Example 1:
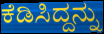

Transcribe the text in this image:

ಕೆಡಿಸಿದ್ದನ್ನು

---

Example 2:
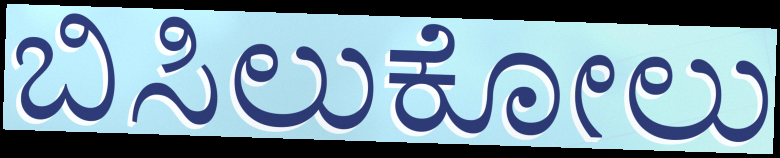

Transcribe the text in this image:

ಬಿಸಿಲುಕೋಲು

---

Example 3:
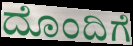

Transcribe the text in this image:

ದೊಂದಿಗೆ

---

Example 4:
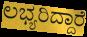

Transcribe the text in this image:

ಲಭ್ಯರಿದ್ದಾರೆ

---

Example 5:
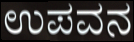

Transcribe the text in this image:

ಉಪವನ